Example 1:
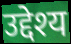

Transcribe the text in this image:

उद्देश्‍य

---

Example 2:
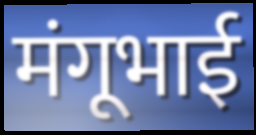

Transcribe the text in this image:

मंगूभाई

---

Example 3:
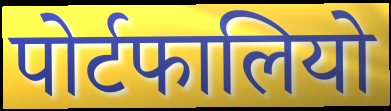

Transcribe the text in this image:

पोर्टफालियो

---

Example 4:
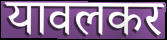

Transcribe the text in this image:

यावलकर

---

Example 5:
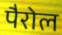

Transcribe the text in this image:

पैरोल